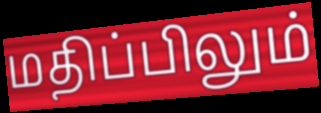
மதிப்பிலும்